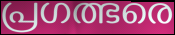
പ്രഗത്ഭരെ